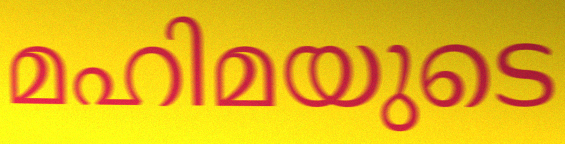
മഹിമയുടെ